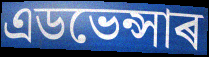
এডভেন্সাৰ